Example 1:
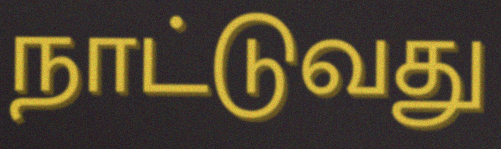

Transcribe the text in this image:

நாட்டுவது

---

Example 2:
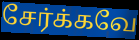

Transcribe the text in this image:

சேர்க்கவே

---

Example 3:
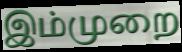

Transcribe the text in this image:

இம்முறை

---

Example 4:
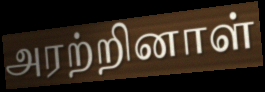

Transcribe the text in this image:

அரற்றினாள்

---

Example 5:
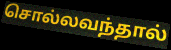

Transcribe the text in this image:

சொல்லவந்தால்